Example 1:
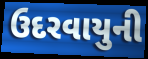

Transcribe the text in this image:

ઉદરવાયુની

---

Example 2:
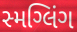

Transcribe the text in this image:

સ્મગ્લિંગ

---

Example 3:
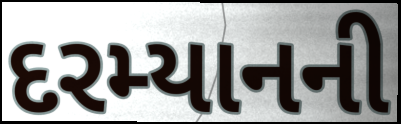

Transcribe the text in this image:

દરમ્યાનની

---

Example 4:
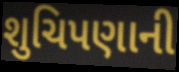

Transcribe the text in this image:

શુચિપણાની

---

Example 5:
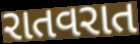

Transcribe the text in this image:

રાતવરાત